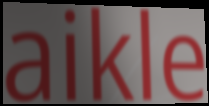
aikle